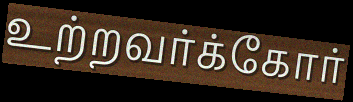
உற்றவர்க்கோர்